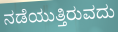
ನಡೆಯುತ್ತಿರುವದು